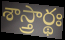
శాస్త్రార్థః